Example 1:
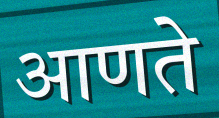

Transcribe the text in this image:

आणते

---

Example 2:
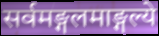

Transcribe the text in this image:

सर्वमङ्गलमाङ्गल्ये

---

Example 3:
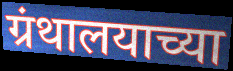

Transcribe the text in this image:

ग्रंथालयाच्या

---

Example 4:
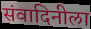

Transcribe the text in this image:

संवादिनीला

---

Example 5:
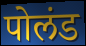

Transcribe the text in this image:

पोलंड